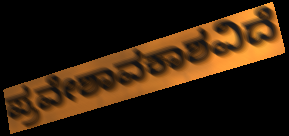
ಪ್ರವೇಶಾವಕಾಶವಿದೆ